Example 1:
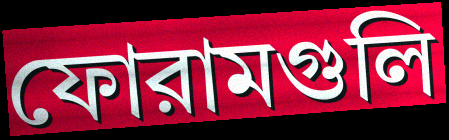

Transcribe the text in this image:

ফোরামগুলি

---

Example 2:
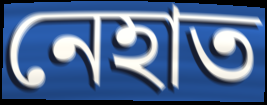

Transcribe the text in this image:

নেহাত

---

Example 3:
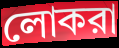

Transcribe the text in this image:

লোকরা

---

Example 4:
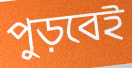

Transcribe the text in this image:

পুড়বেই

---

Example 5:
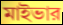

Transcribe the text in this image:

মাইভার